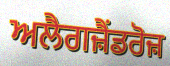
ਅਲੈਗਜ਼ੈਂਡਰੋਜ਼